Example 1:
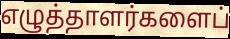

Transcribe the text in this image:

எழுத்தாளர்களைப்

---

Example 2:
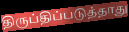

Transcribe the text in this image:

திருப்திப்படுத்தாது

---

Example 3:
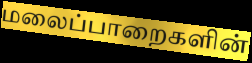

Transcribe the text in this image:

மலைப்பாறைகளின்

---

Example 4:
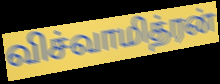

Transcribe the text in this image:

விச்வாமித்ரன்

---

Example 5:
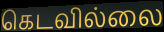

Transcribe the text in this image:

கெடவில்லை